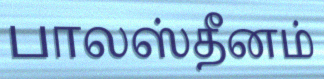
பாலஸ்தீனம்